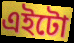
এইটো